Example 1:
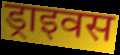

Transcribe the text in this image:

ड्राइवस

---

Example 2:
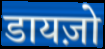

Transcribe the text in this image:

डायज़ो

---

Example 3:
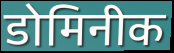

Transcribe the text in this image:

डोमिनीक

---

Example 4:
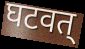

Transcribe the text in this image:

घटवत्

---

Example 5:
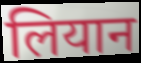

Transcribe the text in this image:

लियान